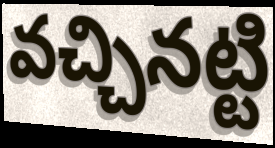
వచ్చినట్టి